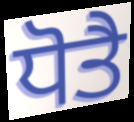
ਧੋਤੈ